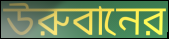
উরুবানের